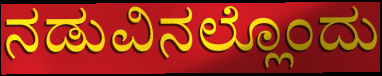
ನಡುವಿನಲ್ಲೊಂದು